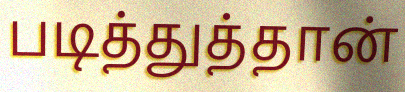
படித்துத்தான்